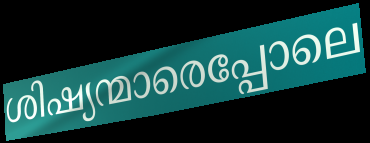
ശിഷ്യന്മാരെപ്പോലെ